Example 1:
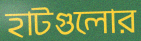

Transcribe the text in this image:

হাটগুলোর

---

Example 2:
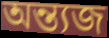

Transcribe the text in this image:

অন্ত্যজ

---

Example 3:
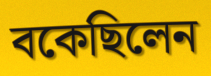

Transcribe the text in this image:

বকেছিলেন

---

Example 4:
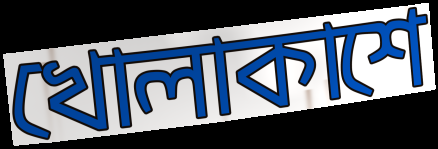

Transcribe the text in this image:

খোলাকাশে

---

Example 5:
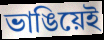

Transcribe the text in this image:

ভাঙিয়েই